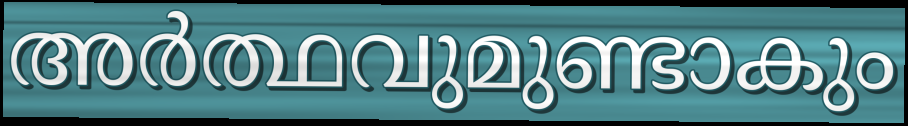
അർത്ഥവുമുണ്ടാകും